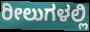
ರೀಲುಗಳಲ್ಲಿ